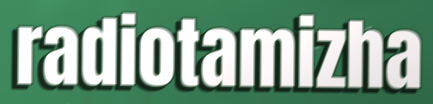
radiotamizha